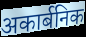
अकार्बनिक